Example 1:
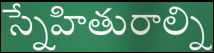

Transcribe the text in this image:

స్నేహితురాల్ని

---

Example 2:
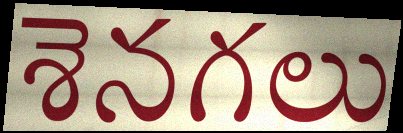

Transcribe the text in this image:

శెనగలు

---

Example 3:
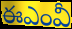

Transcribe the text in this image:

ఈఎంవీ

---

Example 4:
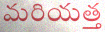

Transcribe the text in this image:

మరియత్త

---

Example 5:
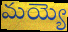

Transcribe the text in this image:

మయ్యె